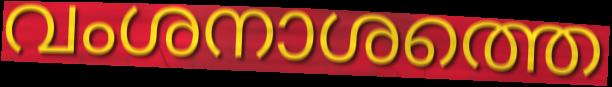
വംശനാശത്തെ